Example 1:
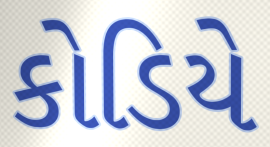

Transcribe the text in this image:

કોડિયે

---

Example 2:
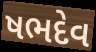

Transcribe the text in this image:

ષભદેવ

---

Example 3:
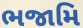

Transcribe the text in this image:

ભજામિ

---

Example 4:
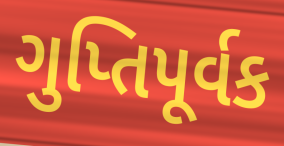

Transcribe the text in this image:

ગુપ્તિપૂર્વક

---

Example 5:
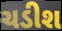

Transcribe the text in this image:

ચડીશ